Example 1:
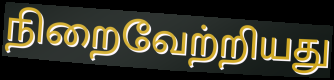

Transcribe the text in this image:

நிறைவேற்றியது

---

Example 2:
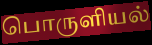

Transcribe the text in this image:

பொருளியல்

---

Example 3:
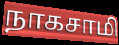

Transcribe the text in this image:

நாகசாமி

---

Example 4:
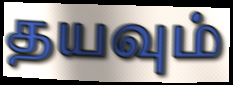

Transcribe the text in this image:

தயவும்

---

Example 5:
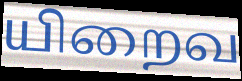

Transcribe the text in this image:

யிறைவ